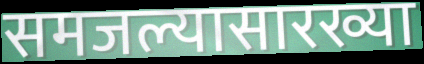
समजल्यासारख्या